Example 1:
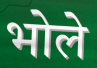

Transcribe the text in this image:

भोले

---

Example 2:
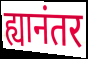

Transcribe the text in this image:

ह्यानंतर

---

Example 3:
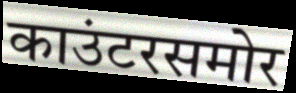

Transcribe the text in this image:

काउंटरसमोर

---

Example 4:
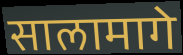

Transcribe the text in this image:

सालामागे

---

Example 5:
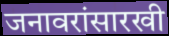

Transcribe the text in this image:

जनावरांसारखी